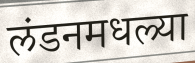
लंडनमधल्या